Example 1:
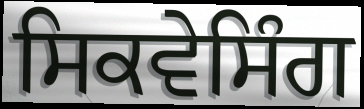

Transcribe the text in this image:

ਸਿਕਵੇਸਿੰਗ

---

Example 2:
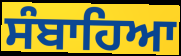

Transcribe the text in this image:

ਸੰਬਾਹਿਆ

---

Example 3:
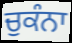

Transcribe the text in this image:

ਚੁਕੰਨਾ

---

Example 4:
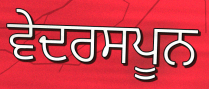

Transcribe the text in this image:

ਵੇਦਰਸਪੂਨ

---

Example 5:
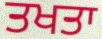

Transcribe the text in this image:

ਤਖਤਾ